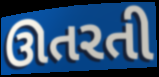
ઊતરતી